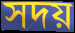
সদয়